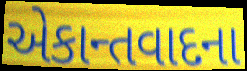
એકાન્તવાદના